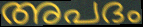
അപദം